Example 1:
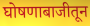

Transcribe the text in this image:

घोषणाबाजीतून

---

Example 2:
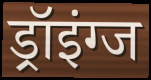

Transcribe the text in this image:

ड्रॉइंग्ज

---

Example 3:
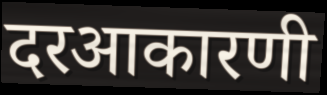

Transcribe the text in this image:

दरआकारणी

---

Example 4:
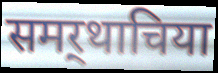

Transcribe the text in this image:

समर्थाचिया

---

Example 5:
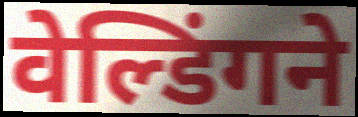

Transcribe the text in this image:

वेल्डिंगने